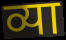
व्या